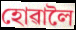
হোৱালৈ